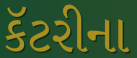
કૅટરીના